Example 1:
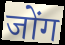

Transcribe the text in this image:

जोंग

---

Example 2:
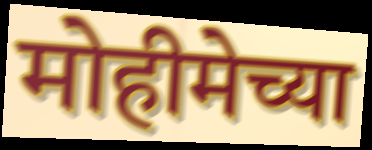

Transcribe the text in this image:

मोहीमेच्या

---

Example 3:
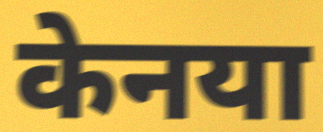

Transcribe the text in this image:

केनया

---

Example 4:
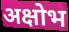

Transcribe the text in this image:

अक्षोभ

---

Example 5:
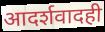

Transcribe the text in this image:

आदर्शवादही